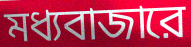
মধ্যবাজারে